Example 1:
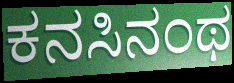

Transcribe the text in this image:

ಕನಸಿನಂಥ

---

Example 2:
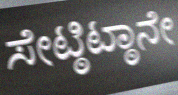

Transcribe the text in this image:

ಸೇಟ್ಠಿಟ್ಠಾನೇ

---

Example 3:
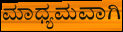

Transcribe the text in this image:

ಮಾಧ್ಯಮವಾಗಿ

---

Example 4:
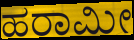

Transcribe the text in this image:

ಹರಾಮೀ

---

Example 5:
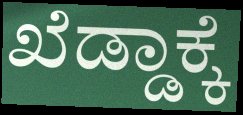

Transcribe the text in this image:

ಖೆಡ್ಡಾಕ್ಕೆ